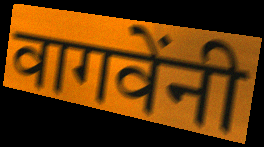
वागवेंनी